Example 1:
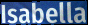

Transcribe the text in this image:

Isabella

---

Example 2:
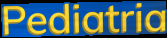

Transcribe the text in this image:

Pediatria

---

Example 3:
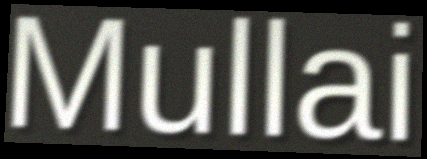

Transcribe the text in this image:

Mullai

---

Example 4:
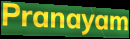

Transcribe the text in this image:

Pranayam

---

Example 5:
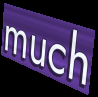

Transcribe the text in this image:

much